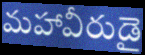
మహావీరుడై